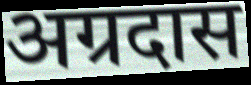
अग्रदास